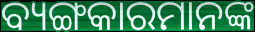
ବ୍ୟଙ୍ଗକାରମାନଙ୍କ